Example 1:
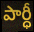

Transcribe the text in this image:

పార్ధీ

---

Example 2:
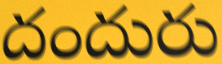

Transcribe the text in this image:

దందురు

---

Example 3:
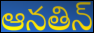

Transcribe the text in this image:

ఆనతిన్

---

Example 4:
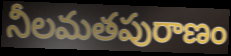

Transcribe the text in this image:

నీలమతపురాణం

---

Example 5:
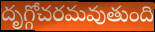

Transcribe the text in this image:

దృగ్గోచరమవుతుంది